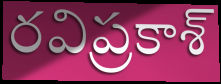
రవిప్రకాశ్